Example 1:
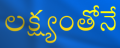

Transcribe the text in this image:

లక్ష్యంతోనే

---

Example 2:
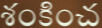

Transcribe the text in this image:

శంకించ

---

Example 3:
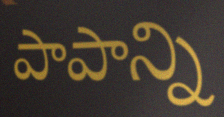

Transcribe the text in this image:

పాపాన్ని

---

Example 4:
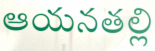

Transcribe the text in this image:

ఆయనతల్లి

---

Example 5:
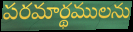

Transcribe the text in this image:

పరమార్థములను